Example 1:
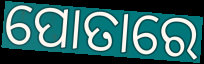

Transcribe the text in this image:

ପୋତାରେ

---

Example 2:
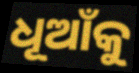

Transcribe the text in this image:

ଧୂଆଁକୁ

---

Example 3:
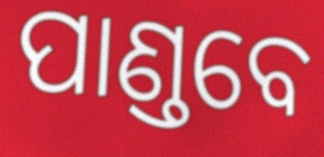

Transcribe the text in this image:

ପାଣ୍ଡବେ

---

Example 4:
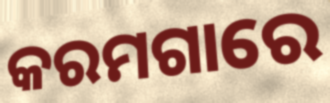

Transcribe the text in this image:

କରମଗାରେ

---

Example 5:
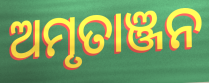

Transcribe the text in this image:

ଅମୃତାଞ୍ଜନ